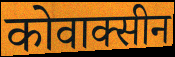
कोवाक्सीन